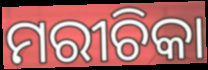
ମରୀଚିକା